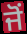
ਜੋਂ